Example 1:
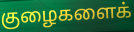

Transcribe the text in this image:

குழைகளைக்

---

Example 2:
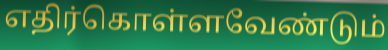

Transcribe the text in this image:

எதிர்கொள்ளவேண்டும்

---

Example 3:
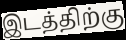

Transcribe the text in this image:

இடத்திற்கு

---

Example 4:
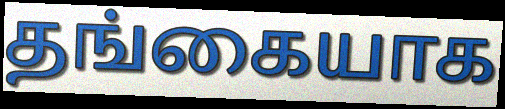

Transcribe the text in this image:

தங்கையாக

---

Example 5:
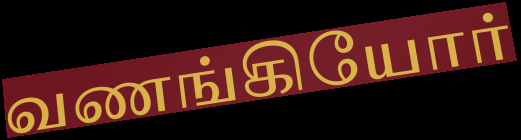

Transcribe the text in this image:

வணங்கியோர்